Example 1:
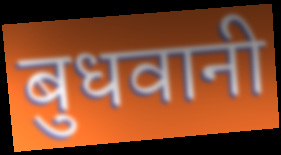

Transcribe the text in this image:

बुधवानी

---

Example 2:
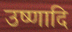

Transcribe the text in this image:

उष्णादि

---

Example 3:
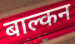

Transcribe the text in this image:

बाल्कन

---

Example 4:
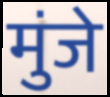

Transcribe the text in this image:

मुंजे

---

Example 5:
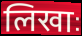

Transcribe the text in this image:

लिखाः